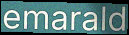
emarald